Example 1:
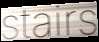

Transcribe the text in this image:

stairs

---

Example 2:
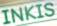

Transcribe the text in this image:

INKIS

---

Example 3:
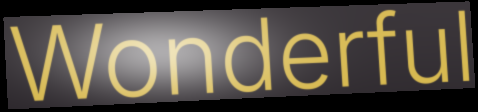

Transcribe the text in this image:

Wonderful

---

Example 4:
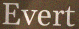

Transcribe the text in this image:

Evert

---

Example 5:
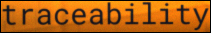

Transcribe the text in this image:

traceability